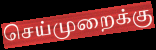
செய்முறைக்கு